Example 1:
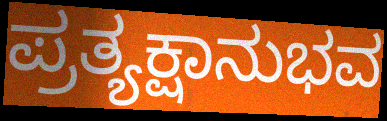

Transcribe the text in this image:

ಪ್ರತ್ಯಕ್ಷಾನುಭವ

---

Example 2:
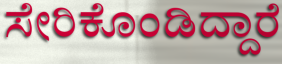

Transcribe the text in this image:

ಸೇರಿಕೊಂಡಿದ್ದಾರೆ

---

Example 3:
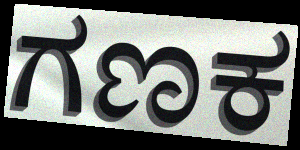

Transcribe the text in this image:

ಗಣಕ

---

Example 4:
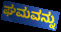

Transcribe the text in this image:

ಘಮವನ್ನು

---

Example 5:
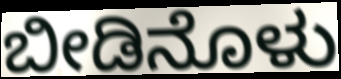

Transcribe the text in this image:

ಬೀಡಿನೊಳು